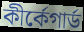
কীর্কেগার্ড